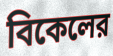
বিকেলের